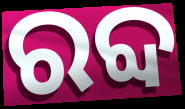
ରବ୍ଦ